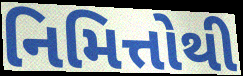
નિમિત્તોથી